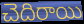
చెదిరాయి